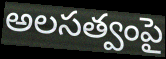
అలసత్వంపై